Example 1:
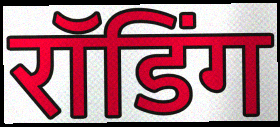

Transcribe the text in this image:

रॉडिंग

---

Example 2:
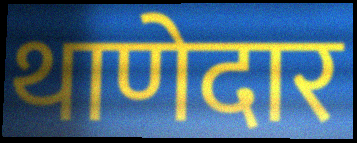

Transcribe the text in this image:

थाणेदार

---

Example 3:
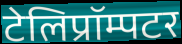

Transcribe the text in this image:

टेलिप्रॉम्पटर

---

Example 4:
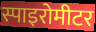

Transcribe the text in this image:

स्पाइरोमीटर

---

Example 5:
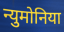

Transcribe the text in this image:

न्युमोनिया